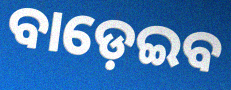
ବାଡ଼େଇବ